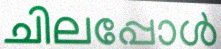
ചിലപ്പോൾ